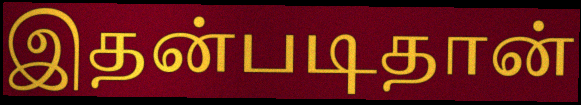
இதன்படிதான்